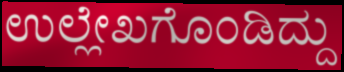
ಉಲ್ಲೇಖಗೊಂಡಿದ್ದು